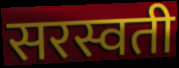
सरस्वती